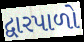
દ્વારપાળો